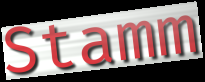
Stamm